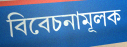
বিবেচনামূলক